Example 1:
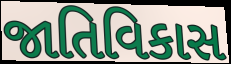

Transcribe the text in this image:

જાતિવિકાસ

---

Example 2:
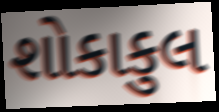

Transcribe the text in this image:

શોકાકુલ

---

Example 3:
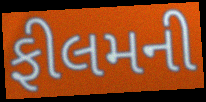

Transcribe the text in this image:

ફીલમની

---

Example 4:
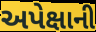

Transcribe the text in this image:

અપેક્ષાની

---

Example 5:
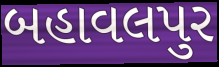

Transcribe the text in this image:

બહાવલપુર